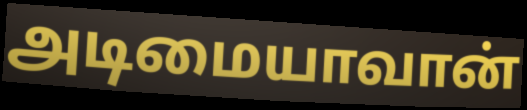
அடிமையாவான்